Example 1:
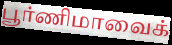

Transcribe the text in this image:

பூர்ணிமாவைக்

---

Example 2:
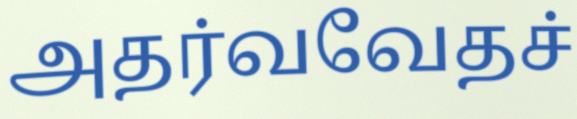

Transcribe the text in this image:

அதர்வவேதச்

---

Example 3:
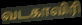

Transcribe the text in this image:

வடகாவிரி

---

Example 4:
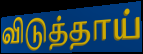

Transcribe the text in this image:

விடுத்தாய்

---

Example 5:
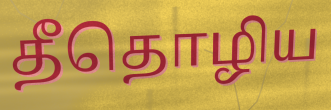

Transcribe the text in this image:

தீதொழிய